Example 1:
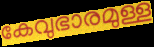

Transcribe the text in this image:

കേവുഭാരമുള്ള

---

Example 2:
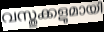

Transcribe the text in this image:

വസ്തുക്കളുമായി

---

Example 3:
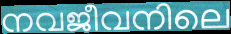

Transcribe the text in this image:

നവജീവനിലെ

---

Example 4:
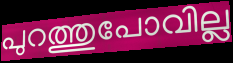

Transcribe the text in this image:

പുറത്തുപോവില്ല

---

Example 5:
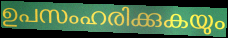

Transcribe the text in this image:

ഉപസംഹരിക്കുകയും